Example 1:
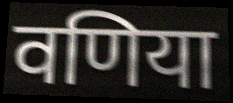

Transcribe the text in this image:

वणिया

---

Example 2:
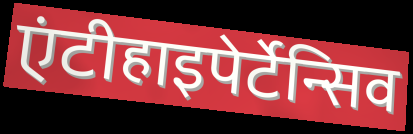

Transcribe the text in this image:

एंटीहाइपेर्टेन्सिव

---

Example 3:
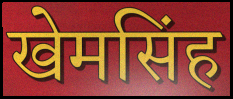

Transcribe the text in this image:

खेमसिंह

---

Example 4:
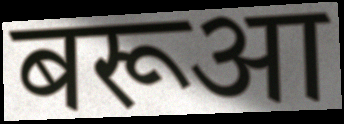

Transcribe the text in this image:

बरूआ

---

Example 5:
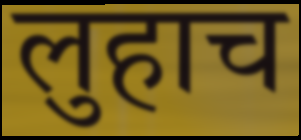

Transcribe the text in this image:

लुहाच